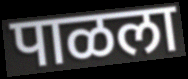
पाळला